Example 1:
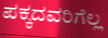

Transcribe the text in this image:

ಪಕ್ಕದವರಿಗೆಲ್ಲ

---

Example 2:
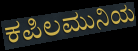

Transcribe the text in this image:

ಕಪಿಲಮುನಿಯ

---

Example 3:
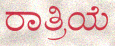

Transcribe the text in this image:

ರಾತ್ರಿಯೆ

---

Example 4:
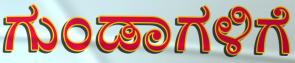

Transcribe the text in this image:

ಗುಂಡಾಗಳಿಗೆ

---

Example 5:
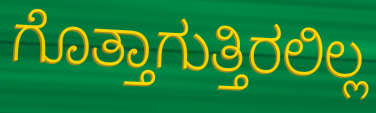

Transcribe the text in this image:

ಗೊತ್ತಾಗುತ್ತಿರಲಿಲ್ಲ